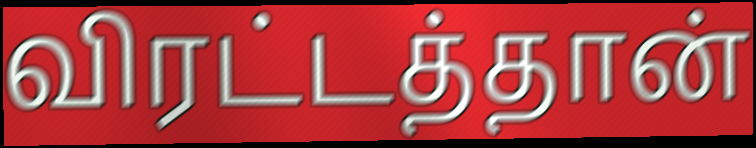
விரட்டத்தான்